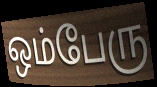
ஒம்பேரு